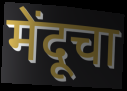
मेंदूचा